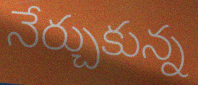
నేర్చుకున్న